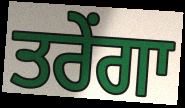
ਤਰੇਂਗਾ